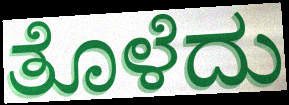
ತೊಳೆದು